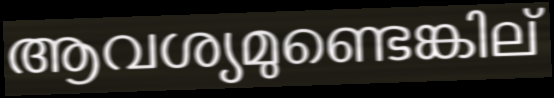
ആവശ്യമുണ്ടെങ്കില്